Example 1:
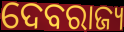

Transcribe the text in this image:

ଦେବରାଜ୍ୟ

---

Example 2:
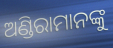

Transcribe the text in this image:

ଅଣ୍ଡିରାମାନଙ୍କୁ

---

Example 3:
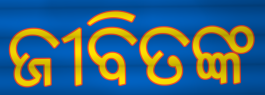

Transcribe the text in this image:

ଜୀବିତଙ୍କ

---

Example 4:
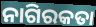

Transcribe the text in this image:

ନାଗିରକତା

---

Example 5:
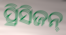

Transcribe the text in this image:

ପ୍ରିସିଜନ୍